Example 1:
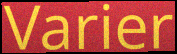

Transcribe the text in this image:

Varier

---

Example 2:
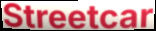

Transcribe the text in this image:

Streetcar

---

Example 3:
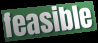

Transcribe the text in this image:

feasible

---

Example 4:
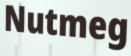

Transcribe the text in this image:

Nutmeg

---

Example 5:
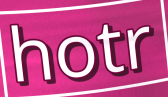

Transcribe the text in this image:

hotr